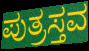
ಪುತ್ರಸ್ತವ